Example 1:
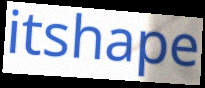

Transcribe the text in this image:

itshape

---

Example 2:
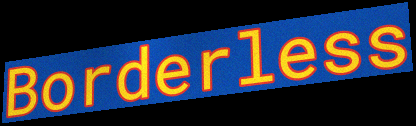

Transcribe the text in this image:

Borderless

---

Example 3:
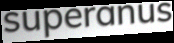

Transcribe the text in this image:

superanus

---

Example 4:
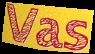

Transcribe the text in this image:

Vas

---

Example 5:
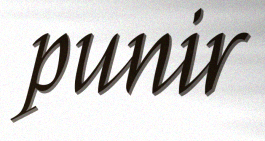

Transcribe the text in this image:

punir